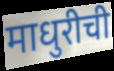
माधुरीची